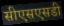
सीएसएसडी